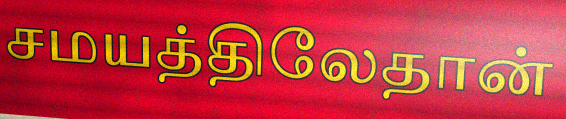
சமயத்திலேதான்